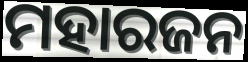
ମହାରଜନ